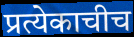
प्रत्येकाचीच